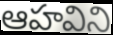
ఆహవిని